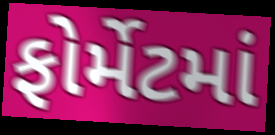
ફોર્મેટમાં